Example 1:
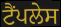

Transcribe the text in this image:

ਟੈਂਪਲੇਸ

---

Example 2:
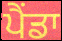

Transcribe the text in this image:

ਪੈਂਡਾ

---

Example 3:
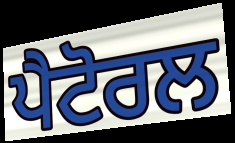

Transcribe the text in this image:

ਪੈਟੋਰਲ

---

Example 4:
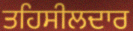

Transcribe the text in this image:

ਤਹਿਸੀਲਦਾਰ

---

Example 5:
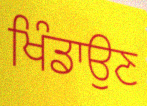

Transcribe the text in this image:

ਖਿੰਡਾਉਣ